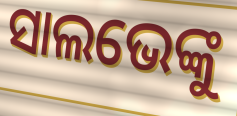
ସାଲଭେଙ୍କୁ